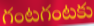
గంటగంటకు